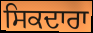
ਸਿਕਦਾਰਾ